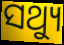
ସଥ୍ୟୁ